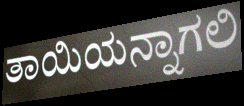
ತಾಯಿಯನ್ನಾಗಲಿ